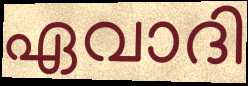
ഏവാദി